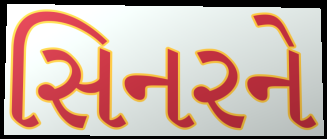
સિનરને